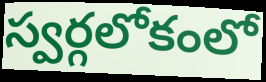
స్వర్గలోకంలో